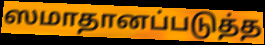
ஸமாதானப்படுத்த